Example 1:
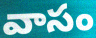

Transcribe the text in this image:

వాసం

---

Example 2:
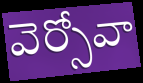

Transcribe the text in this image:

వెర్సోవా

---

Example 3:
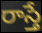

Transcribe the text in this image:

రాస్తే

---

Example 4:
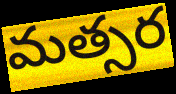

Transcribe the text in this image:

మత్సర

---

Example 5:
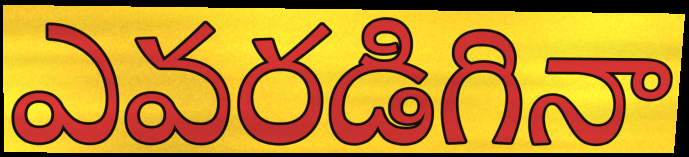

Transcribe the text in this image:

ఎవరడిగినా